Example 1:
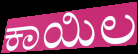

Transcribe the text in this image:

ಕಾಯಿಲ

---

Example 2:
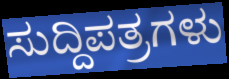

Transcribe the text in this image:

ಸುದ್ದಿಪತ್ರಗಳು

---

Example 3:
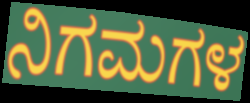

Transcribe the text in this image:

ನಿಗಮಗಳ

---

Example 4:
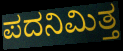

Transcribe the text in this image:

ಪದನಿಮಿತ್ತ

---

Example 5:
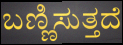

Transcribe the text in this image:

ಬಣ್ಣಿಸುತ್ತದೆ